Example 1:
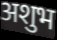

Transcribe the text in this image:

अशुभ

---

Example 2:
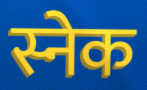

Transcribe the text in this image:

स्नेक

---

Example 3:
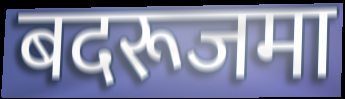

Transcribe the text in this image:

बदरूजमा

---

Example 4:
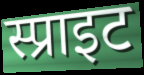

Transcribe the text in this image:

स्प्राइट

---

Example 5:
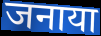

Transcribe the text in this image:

जनाया